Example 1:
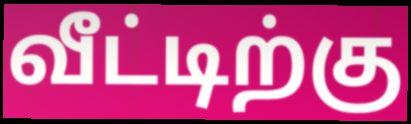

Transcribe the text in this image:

வீட்டிற்கு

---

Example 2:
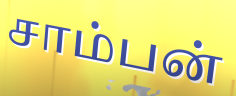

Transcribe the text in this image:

சாம்பன்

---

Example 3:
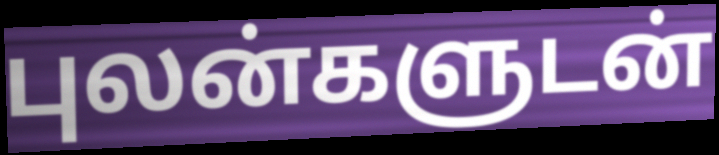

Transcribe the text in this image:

புலன்களுடன்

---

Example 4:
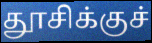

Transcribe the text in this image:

தூசிக்குச்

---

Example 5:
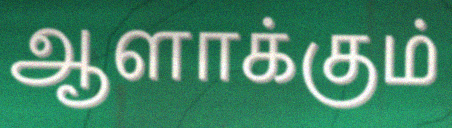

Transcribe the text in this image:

ஆளாக்கும்